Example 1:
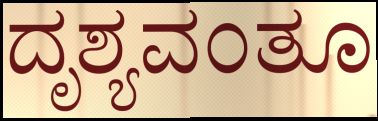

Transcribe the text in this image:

ದೃಶ್ಯವಂತೂ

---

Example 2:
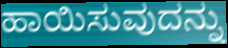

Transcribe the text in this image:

ಹಾಯಿಸುವುದನ್ನು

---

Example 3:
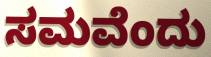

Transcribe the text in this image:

ಸಮವೆಂದು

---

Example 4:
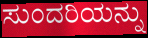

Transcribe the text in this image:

ಸುಂದರಿಯನ್ನು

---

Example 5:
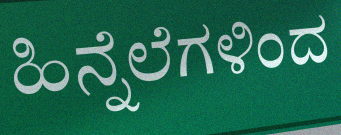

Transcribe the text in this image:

ಹಿನ್ನೆಲೆಗಳಿಂದ